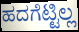
ಹದಗೆಟ್ಟಿಲ್ಲ